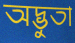
অদ্ভুতা